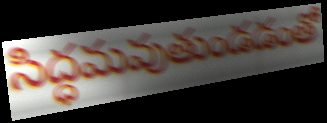
సిద్ధమవుతుండడంతో